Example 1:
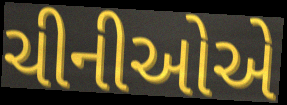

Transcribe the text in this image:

ચીનીઓએ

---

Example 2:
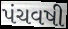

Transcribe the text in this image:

પંચવષી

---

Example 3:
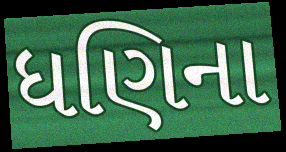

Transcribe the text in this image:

ધણિના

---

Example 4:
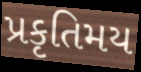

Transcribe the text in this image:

પ્રકૃતિમય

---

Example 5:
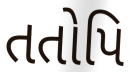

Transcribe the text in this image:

તતોપિ